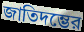
জাতিদম্ভের